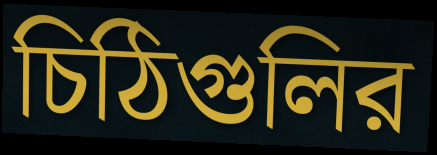
চিঠিগুলির